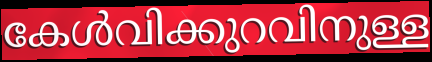
കേൾവിക്കുറവിനുള്ള